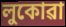
লুকোৱা